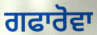
ਗਫਾਰੋਵਾ